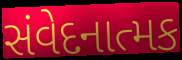
સંવેદનાત્મક